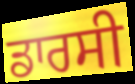
ਡਾਰਸੀ